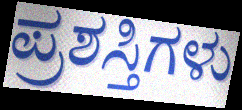
ಪ್ರಶಸ್ತಿಗಳು